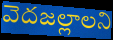
వెదజల్లాలని